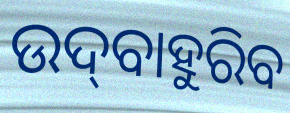
ଉଦ୍‌ବାହୁରିବ